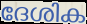
ദേശിക